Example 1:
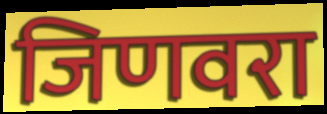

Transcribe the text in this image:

जिणवरा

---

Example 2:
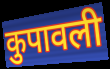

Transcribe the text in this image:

कुपावली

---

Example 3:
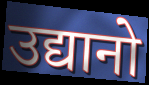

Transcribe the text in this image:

उद्यानो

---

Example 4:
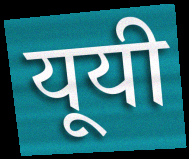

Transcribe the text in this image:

यूयी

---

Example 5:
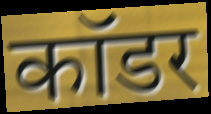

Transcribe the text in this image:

कॉडर